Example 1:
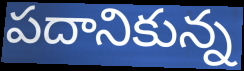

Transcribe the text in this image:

పదానికున్న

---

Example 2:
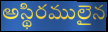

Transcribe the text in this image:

అస్థిరములైన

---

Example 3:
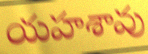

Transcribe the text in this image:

యహశావు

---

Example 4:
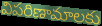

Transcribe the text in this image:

విపరిణామాలకు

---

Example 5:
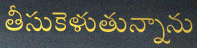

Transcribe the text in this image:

తీసుకెళుతున్నాను